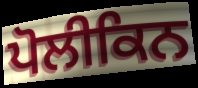
ਪੋਲੀਕਿਨ